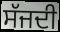
ਸੱਜਦੀ